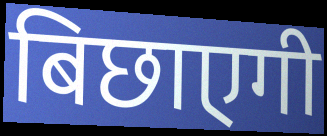
बिछाएगी